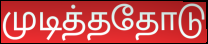
முடித்ததோடு